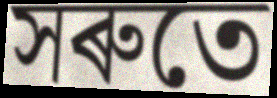
সৰুতে